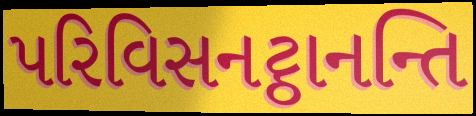
પરિવિસનટ્ઠાનન્તિ